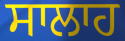
ਸਾਲਾਹ